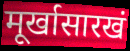
मूर्खासारखं